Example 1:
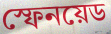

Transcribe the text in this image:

স্ফেনয়েড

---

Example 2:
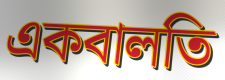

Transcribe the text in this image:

একবালতি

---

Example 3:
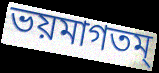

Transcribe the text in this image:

ভয়মাগতম্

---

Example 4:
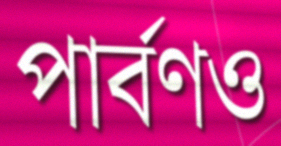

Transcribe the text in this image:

পার্বণও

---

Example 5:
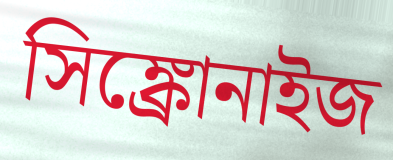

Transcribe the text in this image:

সিঙ্ক্রোনাইজ